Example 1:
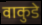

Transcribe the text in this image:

वाकुडे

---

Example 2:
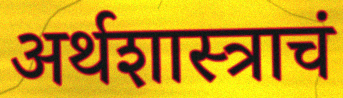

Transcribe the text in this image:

अर्थशास्त्राचं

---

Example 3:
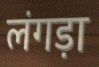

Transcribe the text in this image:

लंगड़ा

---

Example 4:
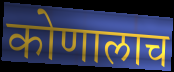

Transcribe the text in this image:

कोणालाच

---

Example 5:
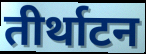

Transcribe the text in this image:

तीर्थाटन